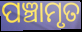
ପଞ୍ଚାମୃତ